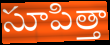
సూపిత్తా